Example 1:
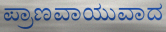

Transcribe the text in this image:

ಪ್ರಾಣವಾಯುವಾದ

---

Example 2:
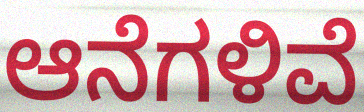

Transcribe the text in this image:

ಆನೆಗಳಿವೆ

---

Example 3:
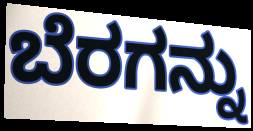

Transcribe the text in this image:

ಬೆರಗನ್ನು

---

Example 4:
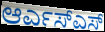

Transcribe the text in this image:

ಆರ್ಎಸ್ಎಸ್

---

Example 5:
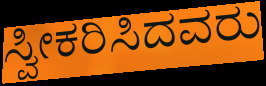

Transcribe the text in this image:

ಸ್ವೀಕರಿಸಿದವರು